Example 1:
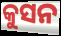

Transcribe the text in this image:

କୁସନ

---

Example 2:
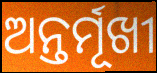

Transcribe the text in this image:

ଅନ୍ତର୍ମୂଖୀ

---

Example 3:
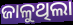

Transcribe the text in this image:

ଜାଳୁଥିଲା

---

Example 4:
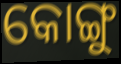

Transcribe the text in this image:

କୋଙ୍ଗୁ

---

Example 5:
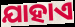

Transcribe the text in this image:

ଯାହାଏ